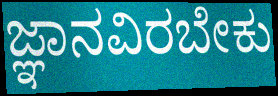
ಜ್ಞಾನವಿರಬೇಕು